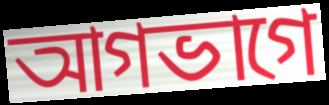
আগভাগে